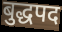
बुद्धपद